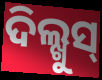
ଦିଲ୍ଖୁସ୍